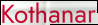
Kothanar